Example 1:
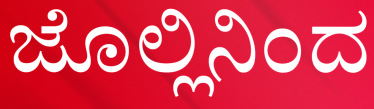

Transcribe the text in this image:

ಜೊಲ್ಲಿನಿಂದ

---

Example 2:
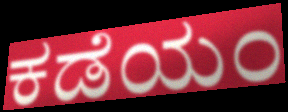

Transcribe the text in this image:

ಕಡೆಯಂ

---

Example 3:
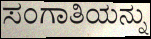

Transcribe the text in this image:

ಸಂಗಾತಿಯನ್ನು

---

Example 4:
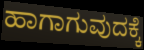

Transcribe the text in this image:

ಹಾಗಾಗುವುದಕ್ಕೆ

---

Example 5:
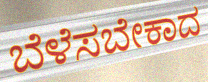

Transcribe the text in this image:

ಬೆಳೆಸಬೇಕಾದ